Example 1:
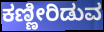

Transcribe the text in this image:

ಕಣ್ಣೀರಿಡುವ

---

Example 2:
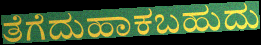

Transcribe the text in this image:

ತೆಗೆದುಹಾಕಬಹುದು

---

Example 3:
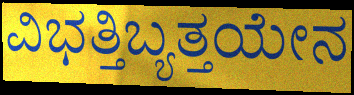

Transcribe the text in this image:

ವಿಭತ್ತಿಬ್ಯತ್ತಯೇನ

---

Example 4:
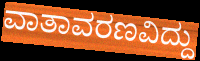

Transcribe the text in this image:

ವಾತಾವರಣವಿದ್ದು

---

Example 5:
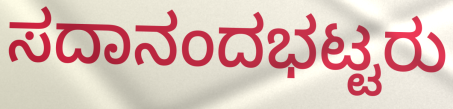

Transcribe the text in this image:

ಸದಾನಂದಭಟ್ಟರು